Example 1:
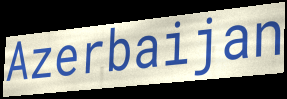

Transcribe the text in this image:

Azerbaijan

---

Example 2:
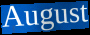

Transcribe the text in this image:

August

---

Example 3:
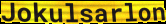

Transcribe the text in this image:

Jokulsarlon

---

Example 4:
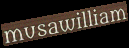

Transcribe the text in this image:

musawilliam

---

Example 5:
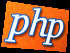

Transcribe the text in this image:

php